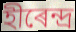
হীৰেন্দ্ৰ